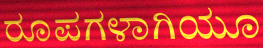
ರೂಪಗಳಾಗಿಯೂ